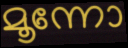
മൂന്നോ